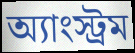
অ্যাংস্ট্রম